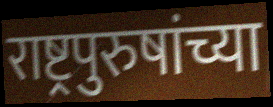
राष्ट्रपुरुषांच्या